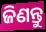
ଜିଣନ୍ତୁ